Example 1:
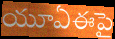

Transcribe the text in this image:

యూఏఈపై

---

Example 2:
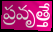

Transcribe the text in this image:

ప్రవృత్తే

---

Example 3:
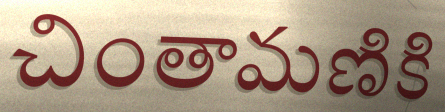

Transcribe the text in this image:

చింతామణికి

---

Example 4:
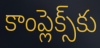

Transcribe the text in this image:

కాంప్లెక్స్‌కు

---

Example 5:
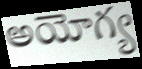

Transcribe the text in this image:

అయోగ్య